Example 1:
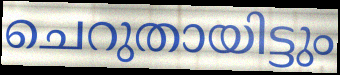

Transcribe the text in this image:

ചെറുതായിട്ടും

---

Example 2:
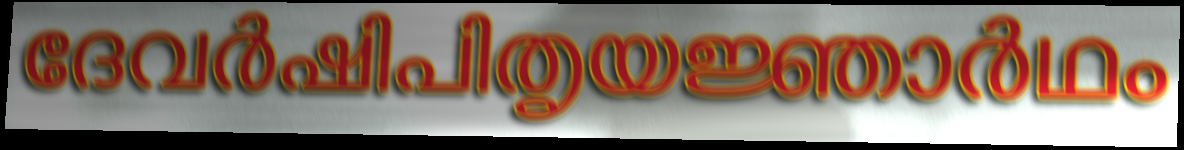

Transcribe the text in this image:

ദേവർഷിപിതൃയജ്ഞാർഥം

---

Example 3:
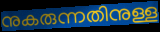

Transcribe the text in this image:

നുകരുന്നതിനുള്ള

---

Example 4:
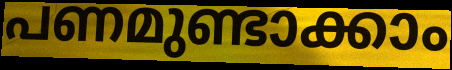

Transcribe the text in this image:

പണമുണ്ടാക്കാം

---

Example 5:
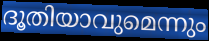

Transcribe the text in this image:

ദൂതിയാവുമെന്നും